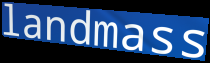
landmass